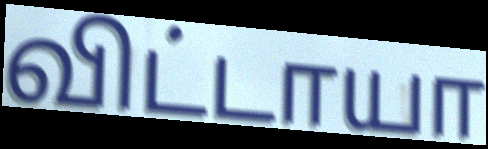
விட்டாயா